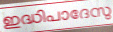
ഇദ്ധിപാദേസു